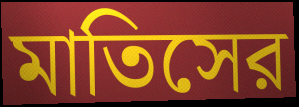
মাতিসের